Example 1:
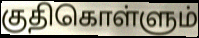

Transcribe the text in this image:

குதிகொள்ளும்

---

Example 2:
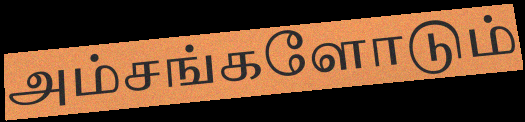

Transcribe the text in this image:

அம்சங்களோடும்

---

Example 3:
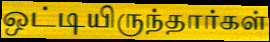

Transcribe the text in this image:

ஒட்டியிருந்தார்கள்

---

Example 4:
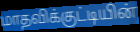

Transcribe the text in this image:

மாதவிக்குட்டியின்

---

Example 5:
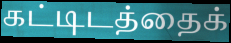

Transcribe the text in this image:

கட்டிடத்தைக்